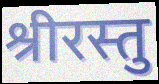
श्रीरस्तु